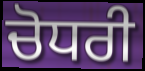
ਚੋਧਰੀ